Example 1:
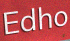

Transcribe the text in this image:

Edho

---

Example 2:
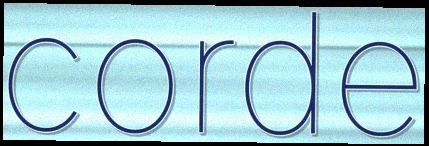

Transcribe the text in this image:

corde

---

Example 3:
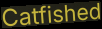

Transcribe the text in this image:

Catfished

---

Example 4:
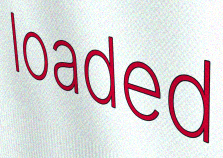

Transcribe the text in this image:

loaded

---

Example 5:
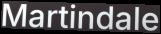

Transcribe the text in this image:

Martindale